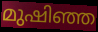
മുഷിഞ്ഞ